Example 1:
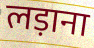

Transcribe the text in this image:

लड़ाना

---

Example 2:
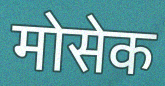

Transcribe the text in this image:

मोसेक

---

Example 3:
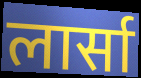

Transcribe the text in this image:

लार्सा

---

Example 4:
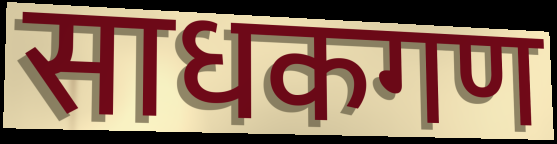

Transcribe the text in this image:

साधकगण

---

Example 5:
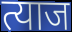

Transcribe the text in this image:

त्याज